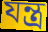
যন্ত্ৰ